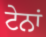
ਟੇਨਾਂ